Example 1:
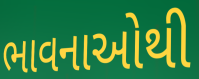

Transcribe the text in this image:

ભાવનાઓથી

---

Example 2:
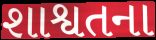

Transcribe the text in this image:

શાશ્વતના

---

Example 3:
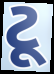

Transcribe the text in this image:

ટૂ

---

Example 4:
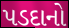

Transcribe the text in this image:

પડદાનો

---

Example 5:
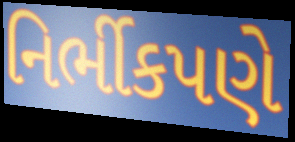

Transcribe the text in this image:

નિર્ભીકપણે